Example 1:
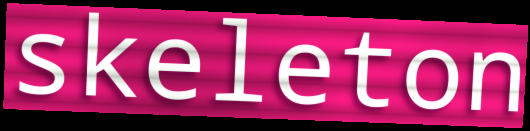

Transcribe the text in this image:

skeleton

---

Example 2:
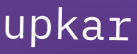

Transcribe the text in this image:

upkar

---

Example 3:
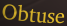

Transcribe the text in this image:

Obtuse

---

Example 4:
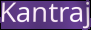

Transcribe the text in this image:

Kantraj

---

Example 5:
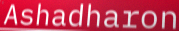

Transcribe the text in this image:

Ashadharon